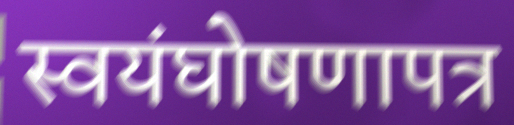
स्वयंघोषणापत्र